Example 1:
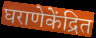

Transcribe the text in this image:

घराणेकेंद्रित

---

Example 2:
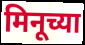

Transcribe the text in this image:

मिनूच्या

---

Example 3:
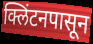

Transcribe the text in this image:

क्लिंटनपासून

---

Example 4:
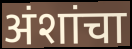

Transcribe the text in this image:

अंशांचा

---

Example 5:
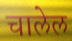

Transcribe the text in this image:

चालेल